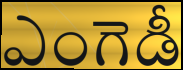
ఎంగెడీ